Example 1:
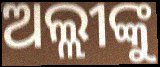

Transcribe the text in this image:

ଅଲ୍ଲୀଙ୍କୁ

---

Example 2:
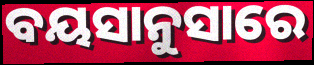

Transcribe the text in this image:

ବୟସାନୁସାରେ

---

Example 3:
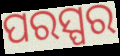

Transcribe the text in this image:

ପରସ୍ପର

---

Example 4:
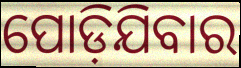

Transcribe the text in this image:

ପୋଡ଼ିଯିବାର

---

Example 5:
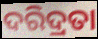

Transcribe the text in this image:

ଦରିଦ୍ରତା